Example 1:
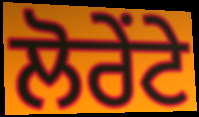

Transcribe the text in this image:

ਲੋਰੇਂਟੇ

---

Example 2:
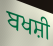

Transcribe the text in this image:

ਬਖਸ਼ੀ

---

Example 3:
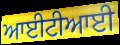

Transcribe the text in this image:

ਆਈਟੀਆਈ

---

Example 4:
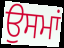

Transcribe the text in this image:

ਉਸਮਾਂ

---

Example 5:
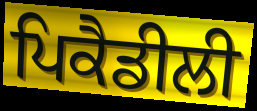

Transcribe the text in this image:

ਪਿਕੈਡੀਲੀ